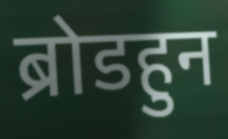
ब्रोडहुन